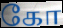
கோ